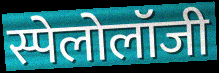
स्पेलोलॉजी